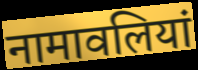
नामावलियां